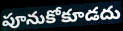
పూనుకోకూడదు